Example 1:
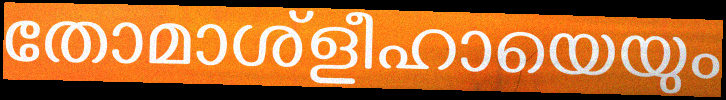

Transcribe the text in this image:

തോമാശ്ളീഹായെയും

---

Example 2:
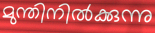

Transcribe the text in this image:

മുന്തിനിൽക്കുന്നു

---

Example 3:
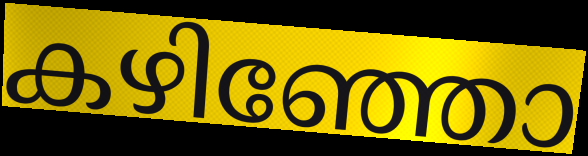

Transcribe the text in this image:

കഴിഞ്ഞോ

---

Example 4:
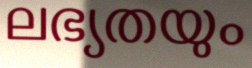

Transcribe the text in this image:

ലഭ്യതയും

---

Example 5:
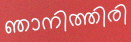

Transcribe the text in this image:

ഞാനിത്തിരി